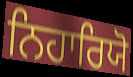
ਨਿਹਾਰਿਯੋ